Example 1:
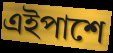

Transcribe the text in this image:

এইপাশে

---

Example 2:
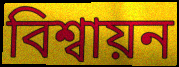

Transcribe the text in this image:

বিশ্বায়ন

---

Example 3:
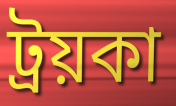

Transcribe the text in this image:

ট্রয়কা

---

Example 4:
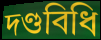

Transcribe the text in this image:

দণ্ডবিধি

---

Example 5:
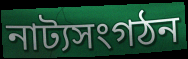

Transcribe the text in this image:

নাট্যসংগঠন